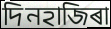
দিনহাজিৰা